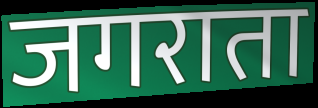
जगराता